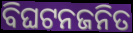
ବିଘଟନଜନିତ